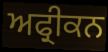
ਅਫ੍ਰੀਕਨ